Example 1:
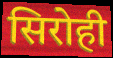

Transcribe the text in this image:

सिरोही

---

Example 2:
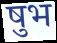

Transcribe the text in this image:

षुभ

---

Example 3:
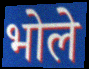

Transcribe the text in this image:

भोले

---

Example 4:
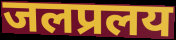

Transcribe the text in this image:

जलप्रलय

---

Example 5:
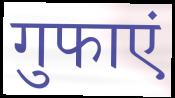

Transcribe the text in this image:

गुफाएं